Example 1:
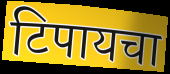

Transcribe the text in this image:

टिपायचा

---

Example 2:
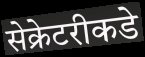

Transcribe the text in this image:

सेक्रेटरीकडे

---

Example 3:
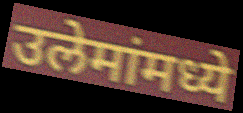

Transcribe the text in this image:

उलेमांमध्ये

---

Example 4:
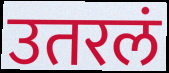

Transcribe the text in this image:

उतरलं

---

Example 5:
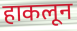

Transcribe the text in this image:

हाकलून